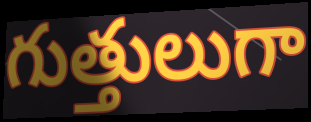
గుత్తులుగా